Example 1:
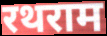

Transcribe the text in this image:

रथराम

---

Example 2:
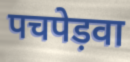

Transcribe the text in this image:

पचपेड़वा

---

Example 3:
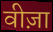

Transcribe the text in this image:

वीज़ा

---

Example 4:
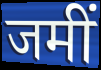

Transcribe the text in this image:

जमीं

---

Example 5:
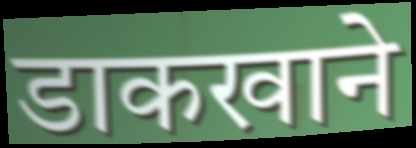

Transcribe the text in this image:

डाकखाने